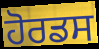
ਹੋਰਡਸ